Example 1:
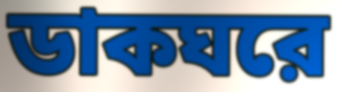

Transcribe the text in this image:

ডাকঘরে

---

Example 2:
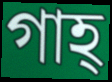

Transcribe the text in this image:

গাহ্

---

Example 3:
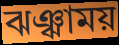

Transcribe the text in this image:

ঝঞ্ঝাময়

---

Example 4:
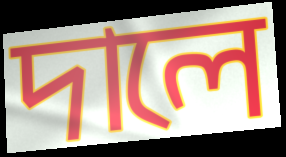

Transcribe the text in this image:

দালে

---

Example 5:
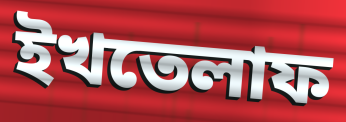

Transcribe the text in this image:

ইখতেলাফ